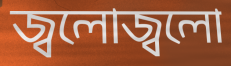
জ্বলোজ্বলো